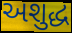
અશુદ્ધ